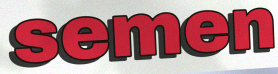
semen